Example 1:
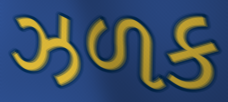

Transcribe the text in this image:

ઝળક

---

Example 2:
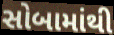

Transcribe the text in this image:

સોબામાંથી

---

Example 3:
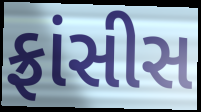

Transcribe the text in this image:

ફ્રાંસીસ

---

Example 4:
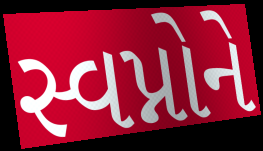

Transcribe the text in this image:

સ્વપ્નોને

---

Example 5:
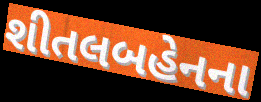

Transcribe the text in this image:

શીતલબહેનના